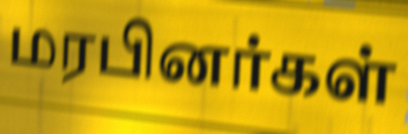
மரபினர்கள்